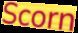
Scorn